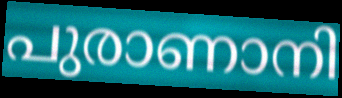
പുരാണാനി